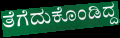
ತೆಗೆದುಕೊಂಡಿದ್ದ